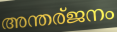
അന്തര്ജനം